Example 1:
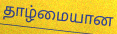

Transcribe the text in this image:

தாழ்மையான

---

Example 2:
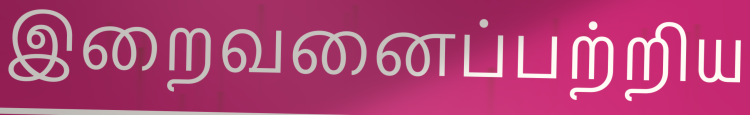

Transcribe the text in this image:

இறைவனைப்பற்றிய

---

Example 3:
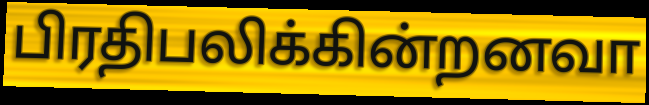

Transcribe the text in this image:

பிரதிபலிக்கின்றனவா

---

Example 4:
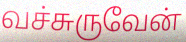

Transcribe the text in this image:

வச்சுருவேன்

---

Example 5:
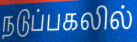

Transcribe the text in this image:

நடுப்பகலில்